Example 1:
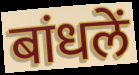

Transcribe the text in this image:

बांधलें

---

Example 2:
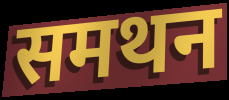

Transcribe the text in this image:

समथन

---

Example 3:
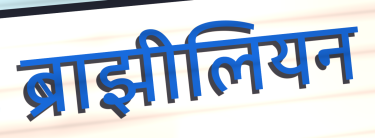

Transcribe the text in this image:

ब्राझीलियन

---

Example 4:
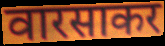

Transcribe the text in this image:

वारसाकर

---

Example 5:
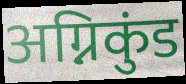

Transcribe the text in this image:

अग्निकुंड